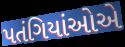
પતંગિયાંઓએ